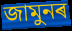
জামুনৰ